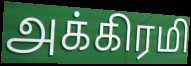
அக்கிரமி